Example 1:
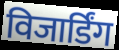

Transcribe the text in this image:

विजार्डिंग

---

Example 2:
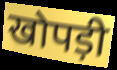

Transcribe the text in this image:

खोपड़ी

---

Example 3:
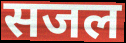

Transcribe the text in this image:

सजल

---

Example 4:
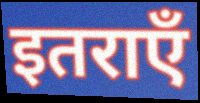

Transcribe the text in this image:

इतराएँ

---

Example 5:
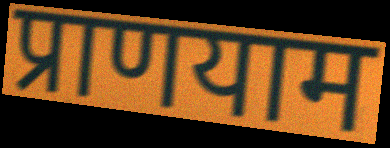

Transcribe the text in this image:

प्राणयाम